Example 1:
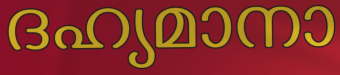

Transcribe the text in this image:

ദഹ്യമാനാ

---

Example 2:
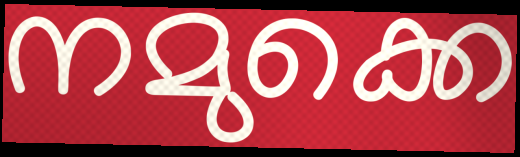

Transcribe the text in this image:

നമുക്കെ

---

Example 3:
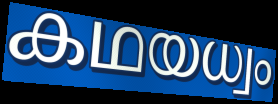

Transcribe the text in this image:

കഥയധ്വം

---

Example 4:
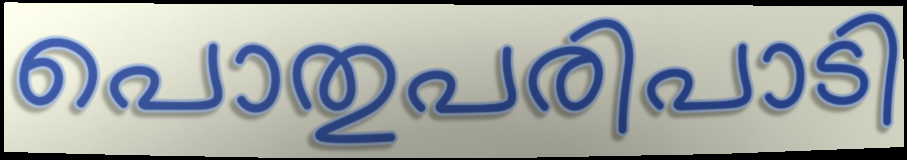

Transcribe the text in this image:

പൊതുപരിപാടി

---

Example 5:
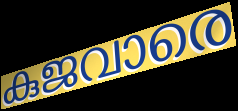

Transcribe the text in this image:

കുജവാരെ